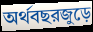
অর্থবছরজুড়ে